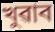
খুৱাব